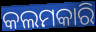
କଲମକାରି